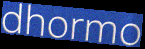
dhormo